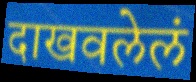
दाखवलेलं